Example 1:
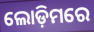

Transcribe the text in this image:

ଲୋଡ଼ିମରେ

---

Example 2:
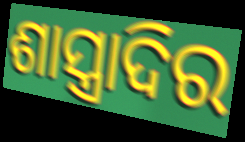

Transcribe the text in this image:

ଶାସ୍ତ୍ରାଦିର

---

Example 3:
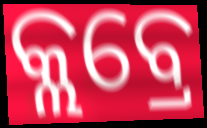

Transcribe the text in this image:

କ୍ଲବ୍ରେ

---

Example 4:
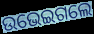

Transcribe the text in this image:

ଉଭେଇଗଲେ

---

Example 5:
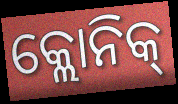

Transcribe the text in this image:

କ୍ଲୋନିକ୍